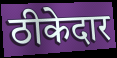
ठीकेदार